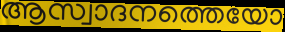
ആസ്വാദനത്തെയോ